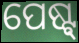
ପେଷ୍ଟ୍